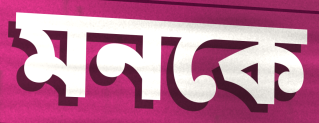
মনকে